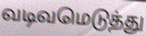
வடிவமெடுத்து